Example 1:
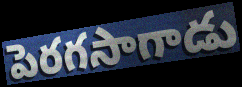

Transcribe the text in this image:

పెరగసాగాడు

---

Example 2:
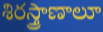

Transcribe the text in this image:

శిరస్త్రాణాలూ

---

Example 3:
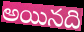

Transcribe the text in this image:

అయినది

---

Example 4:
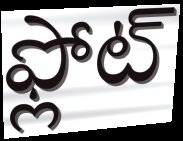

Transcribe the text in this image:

ఫ్లోట్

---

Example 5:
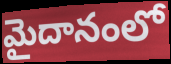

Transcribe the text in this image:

మైదానంలో